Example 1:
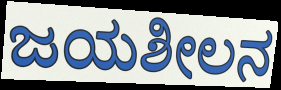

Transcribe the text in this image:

ಜಯಶೀಲನ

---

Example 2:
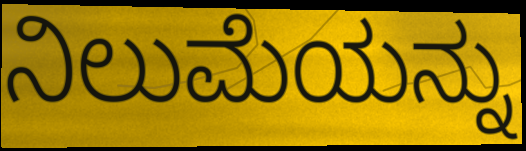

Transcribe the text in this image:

ನಿಲುಮೆಯನ್ನು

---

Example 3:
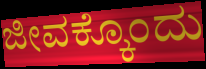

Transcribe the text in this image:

ಜೀವಕ್ಕೊಂದು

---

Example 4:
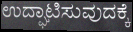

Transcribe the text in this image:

ಉದ್ಘಾಟಿಸುವುದಕ್ಕೆ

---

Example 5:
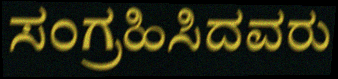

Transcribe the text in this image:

ಸಂಗ್ರಹಿಸಿದವರು